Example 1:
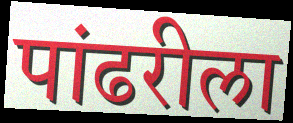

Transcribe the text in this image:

पांढरीला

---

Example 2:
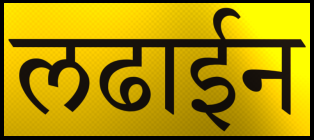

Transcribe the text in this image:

लढाईन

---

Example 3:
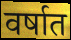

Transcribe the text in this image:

वर्षात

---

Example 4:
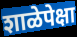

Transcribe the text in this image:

शाळेपेक्षा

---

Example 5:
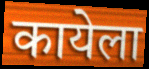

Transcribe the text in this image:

कायेला